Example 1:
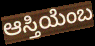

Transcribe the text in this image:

ಆಸ್ತಿಯೆಂಬ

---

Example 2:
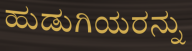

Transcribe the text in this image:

ಹುಡುಗಿಯರನ್ನು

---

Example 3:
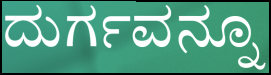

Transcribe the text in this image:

ದುರ್ಗವನ್ನೂ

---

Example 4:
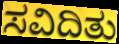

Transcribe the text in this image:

ಸವಿದಿತು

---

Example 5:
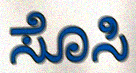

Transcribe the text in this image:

ಸೊಸಿ